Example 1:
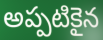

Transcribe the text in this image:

అప్పటికైన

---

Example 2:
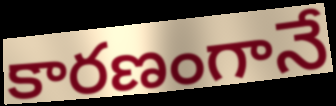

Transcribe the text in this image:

కారణంగానే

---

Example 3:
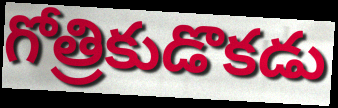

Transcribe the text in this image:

గోత్రికుడొకడు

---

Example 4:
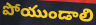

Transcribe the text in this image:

పోయుండాలి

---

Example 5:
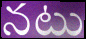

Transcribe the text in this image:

నటు